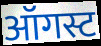
ऑगस्ट